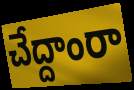
చేద్దాంరా